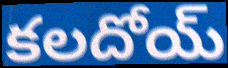
కలదోయ్